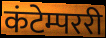
कंटेम्पररी